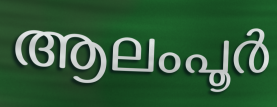
ആലംപൂർ